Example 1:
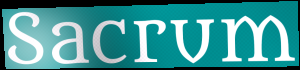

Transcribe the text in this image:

Sacrum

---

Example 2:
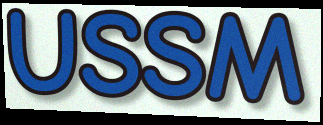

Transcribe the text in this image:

USSM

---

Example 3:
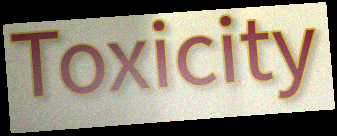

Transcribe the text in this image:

Toxicity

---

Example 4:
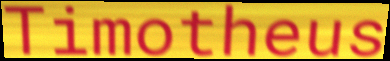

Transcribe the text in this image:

Timotheus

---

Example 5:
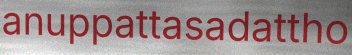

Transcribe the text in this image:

anuppattasadattho